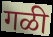
गळी